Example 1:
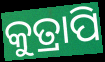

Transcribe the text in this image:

କୁତ୍ରାପି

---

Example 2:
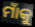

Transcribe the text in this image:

ମାଁକୁ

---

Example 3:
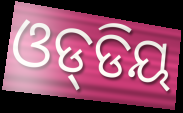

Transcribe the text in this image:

ଓଡ୍‌ଡିୟ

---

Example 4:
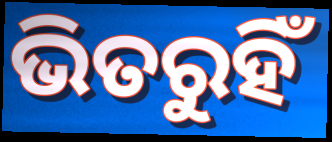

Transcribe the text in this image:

ଭିତରୁହିଁ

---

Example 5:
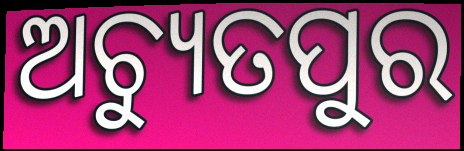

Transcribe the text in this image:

ଅଚ୍ୟୁତପୁର